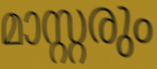
മാസ്റ്റരും